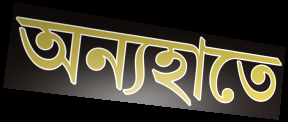
অন্যহাতে